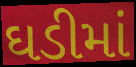
ઘડીમાં